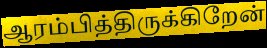
ஆரம்பித்திருக்கிறேன்